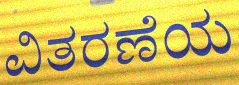
ವಿತರಣೆಯ